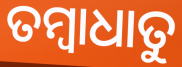
ତମ୍ବାଧାତୁ